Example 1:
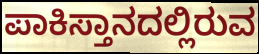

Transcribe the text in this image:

ಪಾಕಿಸ್ತಾನದಲ್ಲಿರುವ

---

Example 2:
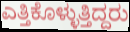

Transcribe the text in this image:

ಎತ್ತಿಕೊಳ್ಳುತ್ತಿದ್ದರು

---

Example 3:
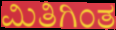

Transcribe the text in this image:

ಮಿತಿಗಿಂತ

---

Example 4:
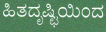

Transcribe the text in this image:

ಹಿತದೃಷ್ಟಿಯಿಂದ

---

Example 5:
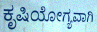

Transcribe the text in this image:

ಕೃಷಿಯೋಗ್ಯವಾಗಿ